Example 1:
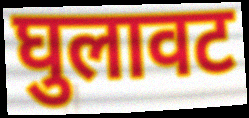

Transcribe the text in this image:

घुलावट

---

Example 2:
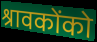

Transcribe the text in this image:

श्रावकोंको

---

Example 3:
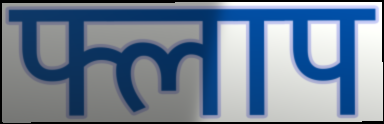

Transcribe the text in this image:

फ्लाप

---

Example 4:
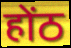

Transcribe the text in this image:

होंठ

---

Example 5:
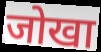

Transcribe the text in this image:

जोखा